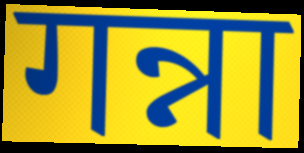
गन्ना